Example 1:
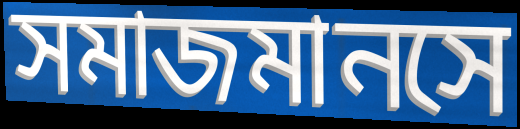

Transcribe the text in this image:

সমাজমানসে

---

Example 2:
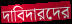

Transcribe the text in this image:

দাবিদারদের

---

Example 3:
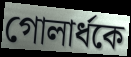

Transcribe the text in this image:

গোলার্ধকে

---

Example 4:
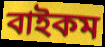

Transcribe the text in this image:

বাইকম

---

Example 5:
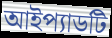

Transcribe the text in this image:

আইপ্যাডটি